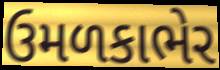
ઉમળકાભેર